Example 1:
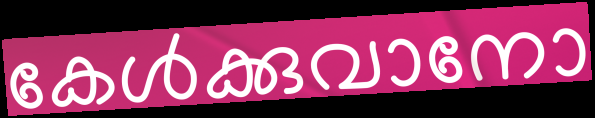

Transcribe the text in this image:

കേൾക്കുവാനോ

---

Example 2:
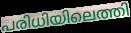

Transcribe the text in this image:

പരിധിയിലെത്തി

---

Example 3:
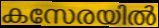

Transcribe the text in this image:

കസേരയിൽ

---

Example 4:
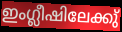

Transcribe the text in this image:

ഇംഗ്ലീഷിലേക്കു്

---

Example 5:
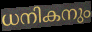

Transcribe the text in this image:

ധനികനും